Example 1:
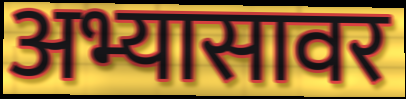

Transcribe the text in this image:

अभ्यासावर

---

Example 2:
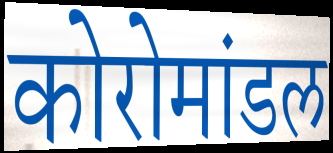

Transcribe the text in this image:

कोरोमांडल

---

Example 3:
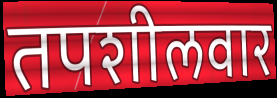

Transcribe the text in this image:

तपशीलवार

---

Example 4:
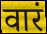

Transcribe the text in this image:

वारं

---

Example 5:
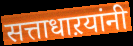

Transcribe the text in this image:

सत्ताधाऱयांनी